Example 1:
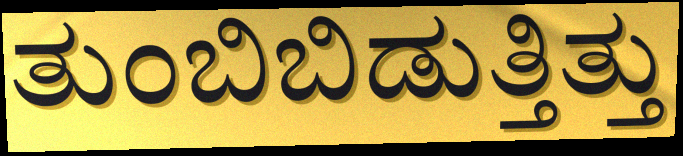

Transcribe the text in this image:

ತುಂಬಿಬಿಡುತ್ತಿತ್ತು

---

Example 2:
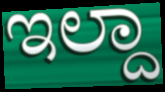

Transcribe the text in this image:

ಇಲ್ದಾ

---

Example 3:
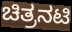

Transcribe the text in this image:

ಚಿತ್ರನಟಿ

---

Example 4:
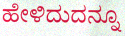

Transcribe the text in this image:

ಹೇಳಿದುದನ್ನೂ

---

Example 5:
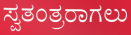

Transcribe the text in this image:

ಸ್ವತಂತ್ರರಾಗಲು